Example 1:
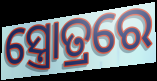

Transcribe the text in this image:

ସ୍ତ୍ରୋତ୍ରରେ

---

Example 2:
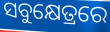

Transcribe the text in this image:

ସବୁକ୍ଷେତ୍ରରେ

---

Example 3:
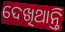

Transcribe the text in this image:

ଦେଖିଥାନ୍ତି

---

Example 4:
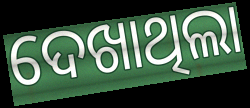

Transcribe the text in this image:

ଦେଖାଥିଲା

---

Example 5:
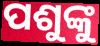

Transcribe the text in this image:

ପଶୁଙ୍କୁ